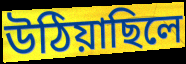
উঠিয়াছিলে